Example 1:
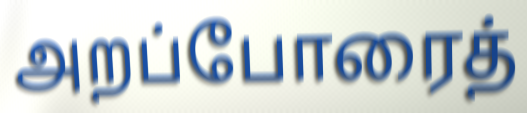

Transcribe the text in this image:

அறப்போரைத்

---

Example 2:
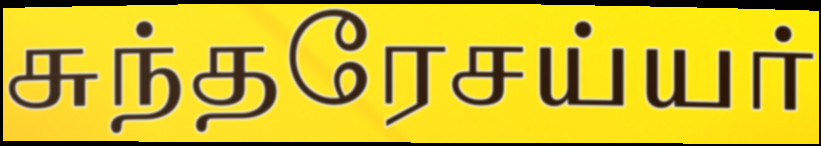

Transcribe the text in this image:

சுந்தரேசய்யர்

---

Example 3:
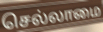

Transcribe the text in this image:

செல்லாமை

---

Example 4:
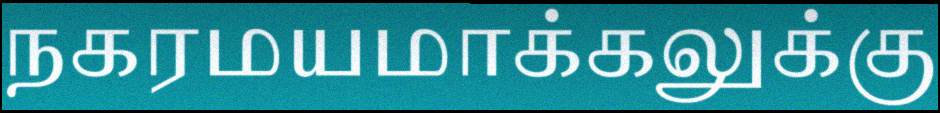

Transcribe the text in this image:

நகரமயமாக்கலுக்கு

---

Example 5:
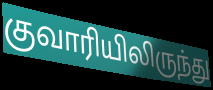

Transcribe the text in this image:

குவாரியிலிருந்து